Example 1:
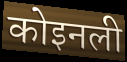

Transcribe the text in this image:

कोइनली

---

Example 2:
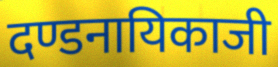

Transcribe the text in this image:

दण्डनायिकाजी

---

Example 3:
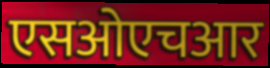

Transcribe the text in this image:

एसओएचआर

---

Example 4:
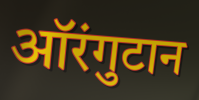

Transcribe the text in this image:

ऑरंगुटान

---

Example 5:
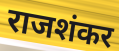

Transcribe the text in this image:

राजशंकर